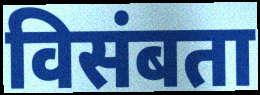
विसंबता